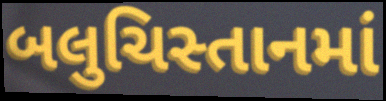
બલુચિસ્તાનમાં